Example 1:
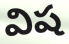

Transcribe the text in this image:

విష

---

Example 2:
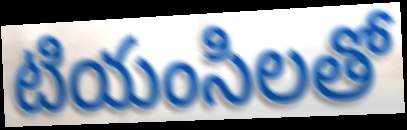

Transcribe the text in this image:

టియంసిలతో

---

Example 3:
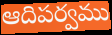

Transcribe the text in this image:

ఆదిపర్వము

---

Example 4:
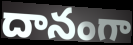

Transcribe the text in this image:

దానంగా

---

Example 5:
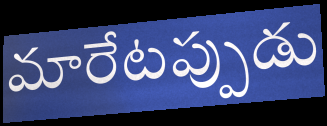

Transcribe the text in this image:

మారేటప్పుడు